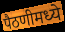
पैठणीमध्ये